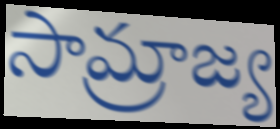
సామ్రాజ్య